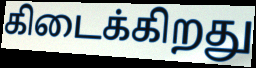
கிடைக்கிறது